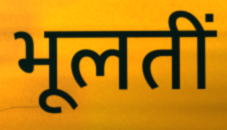
भूलतीं